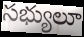
సభ్యులూ